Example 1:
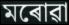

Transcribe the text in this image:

মৰোৱা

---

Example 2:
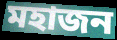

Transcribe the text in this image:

মহাজন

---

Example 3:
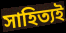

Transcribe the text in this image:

সাহিত্যই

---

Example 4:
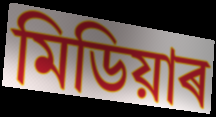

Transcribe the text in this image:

মিডিয়াৰ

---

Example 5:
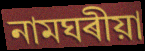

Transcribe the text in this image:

নামঘৰীয়া